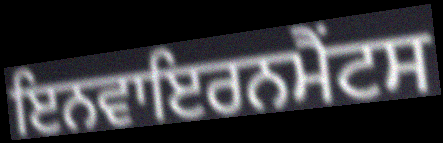
ਇਨਵਾਇਰਨਮੈਂਟਸ